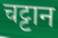
चट्टान